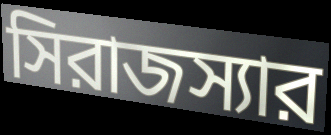
সিরাজস্যার